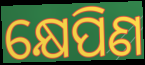
କ୍ଷେପିଣ